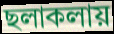
ছলাকলায়